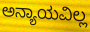
ಅನ್ಯಾಯವಿಲ್ಲ